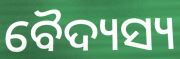
ବୈଦ୍ୟସ୍ୟ